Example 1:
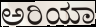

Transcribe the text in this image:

ಅರಿಯಾ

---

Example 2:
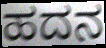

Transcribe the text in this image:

ಹದನ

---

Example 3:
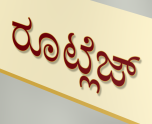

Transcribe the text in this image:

ರೂಟ್ಲೆಜ್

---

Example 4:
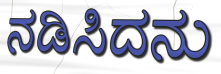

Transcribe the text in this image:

ನಡಿಸಿದನು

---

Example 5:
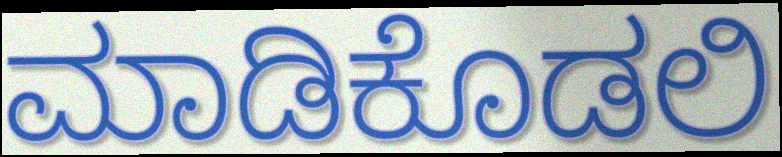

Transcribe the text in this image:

ಮಾಡಿಕೊಡಲಿ